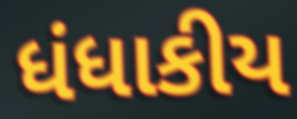
ધંધાકીય